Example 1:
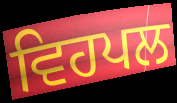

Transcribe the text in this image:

ਵਿਹਪਲ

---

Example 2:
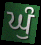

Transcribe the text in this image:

ਘੁੰ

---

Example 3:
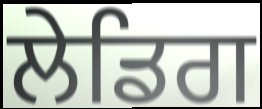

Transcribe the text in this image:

ਲੇਡਿਗ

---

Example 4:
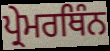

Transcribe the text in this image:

ਪ੍ਰੇਮਰਥਿੰਨ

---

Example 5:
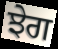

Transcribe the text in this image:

ਝੇਗ